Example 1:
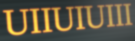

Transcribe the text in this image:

UIIUIUIII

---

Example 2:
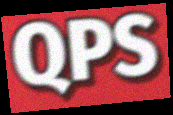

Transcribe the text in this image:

QPS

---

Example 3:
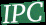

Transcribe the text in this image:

IPC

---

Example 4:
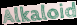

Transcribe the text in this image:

Alkaloid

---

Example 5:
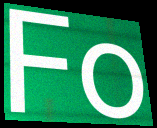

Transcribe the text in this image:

Fo